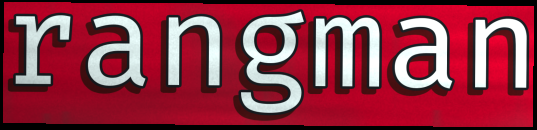
rangman